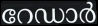
റേഡാർ